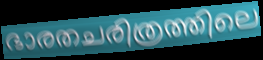
ഭാരതചരിത്രത്തിലെ